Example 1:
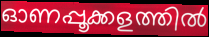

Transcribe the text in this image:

ഓണപ്പൂക്കളത്തിൽ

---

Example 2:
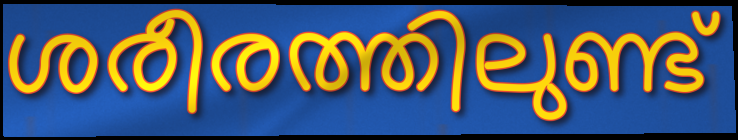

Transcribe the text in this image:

ശരീരത്തിലുണ്ട്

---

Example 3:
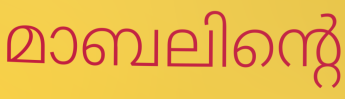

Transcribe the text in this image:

മാബലിന്റെ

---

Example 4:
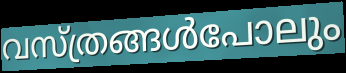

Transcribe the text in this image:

വസ്ത്രങ്ങൾപോലും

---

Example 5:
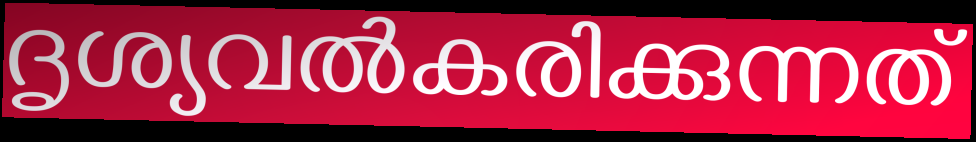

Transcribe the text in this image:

ദൃശ്യവൽകരിക്കുന്നത്